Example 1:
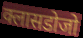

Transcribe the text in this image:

क्लासडोजो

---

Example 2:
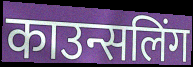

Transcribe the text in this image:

काउन्सलिंग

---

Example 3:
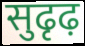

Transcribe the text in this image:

सुढृढ़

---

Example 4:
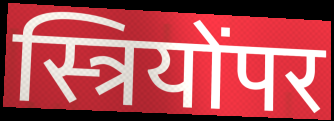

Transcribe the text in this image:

स्त्रियोंपर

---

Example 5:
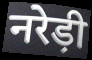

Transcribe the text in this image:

नरेड़ी